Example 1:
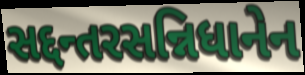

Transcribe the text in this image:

સદ્દન્તરસન્નિધાનેન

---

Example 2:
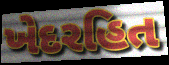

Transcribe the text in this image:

ખેદરહિત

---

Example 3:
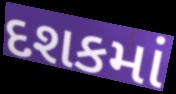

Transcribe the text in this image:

દશકમાં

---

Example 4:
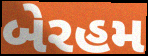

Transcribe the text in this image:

બેરહમ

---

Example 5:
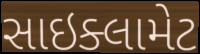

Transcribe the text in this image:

સાઇક્લામેટ